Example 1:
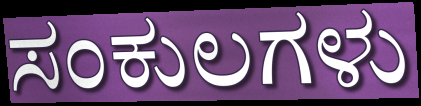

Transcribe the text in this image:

ಸಂಕುಲಗಳು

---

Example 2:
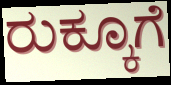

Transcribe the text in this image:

ರುಕ್ಕೂಗೆ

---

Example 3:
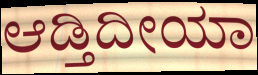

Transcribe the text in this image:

ಆಡ್ತಿದೀಯಾ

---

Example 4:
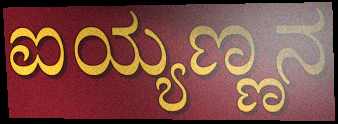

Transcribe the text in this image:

ಐಯ್ಯಣ್ಣನ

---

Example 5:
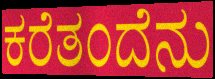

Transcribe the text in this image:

ಕರೆತಂದೆನು